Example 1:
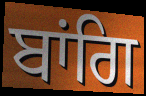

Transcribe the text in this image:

ਬਾਂਗਿ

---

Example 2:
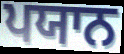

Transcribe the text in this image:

ਪਯਾਨ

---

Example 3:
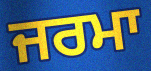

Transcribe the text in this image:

ਜਰਮਾ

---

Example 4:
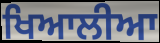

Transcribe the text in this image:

ਖਿਆਲੀਆ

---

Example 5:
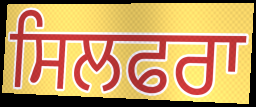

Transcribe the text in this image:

ਸਿਲਫਰਾ